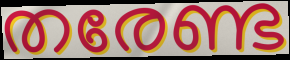
തരേണ്ട